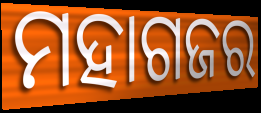
ମହାଗଜର